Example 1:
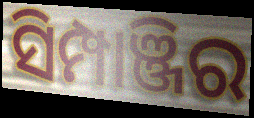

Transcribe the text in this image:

ସିମ୍ପାଞ୍ଜିର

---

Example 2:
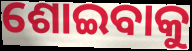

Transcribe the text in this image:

ଶୋଇବାକୁ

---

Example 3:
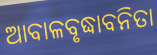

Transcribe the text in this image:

ଆବାଳବୃଦ୍ଧାବନିତା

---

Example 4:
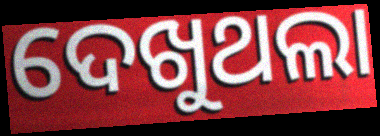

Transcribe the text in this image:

ଦେଖୁଥଲା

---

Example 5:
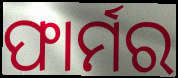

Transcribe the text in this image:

ଫାର୍ମର